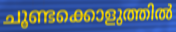
ചൂണ്ടക്കൊളുത്തിൽ